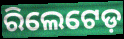
ରିଲେଟେଡ଼